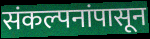
संकल्पनांपासून